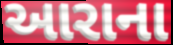
આરાના